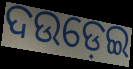
ଦଉଡ଼େଇ